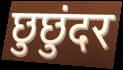
छुछुंदर